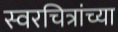
स्वरचित्रांच्या